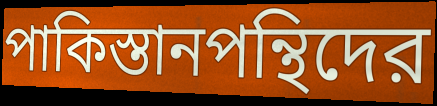
পাকিস্তানপন্থিদের